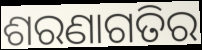
ଶରଣାଗତିର